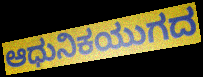
ಆಧುನಿಕಯುಗದ